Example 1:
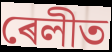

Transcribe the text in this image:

ৰেলীত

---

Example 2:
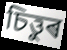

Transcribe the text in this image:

চিত্তুৰ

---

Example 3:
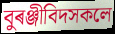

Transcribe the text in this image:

বুৰঞ্জীবিদসকলে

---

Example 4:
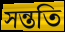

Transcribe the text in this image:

সন্ততি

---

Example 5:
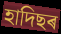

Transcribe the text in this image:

হাদিছৰ